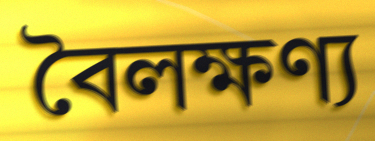
বৈলক্ষণ্য